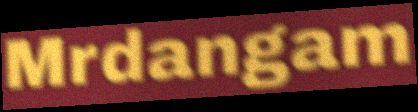
Mrdangam